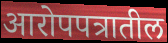
आरोपपत्रातील